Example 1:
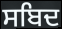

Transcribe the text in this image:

ਸਬਿਦ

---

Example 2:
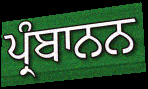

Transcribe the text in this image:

ਪ੍ਰੰਬਾਨਨ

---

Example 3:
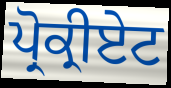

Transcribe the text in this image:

ਪ੍ਰੋਕ੍ਰੀਏਟ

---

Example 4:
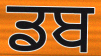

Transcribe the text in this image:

ਡਬ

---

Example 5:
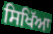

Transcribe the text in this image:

ਸਿਖਿੱਆ